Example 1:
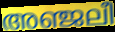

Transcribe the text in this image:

അഞ്ജലീ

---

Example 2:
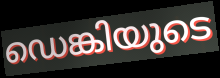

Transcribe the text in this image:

ഡെങ്കിയുടെ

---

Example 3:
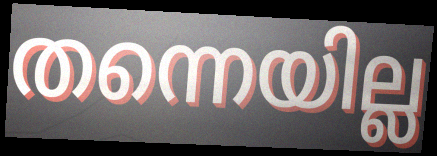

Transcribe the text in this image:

തന്നെയില്ല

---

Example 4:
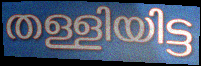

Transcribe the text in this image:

തള്ളിയിട്ട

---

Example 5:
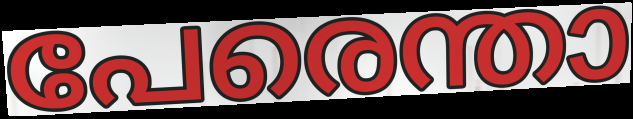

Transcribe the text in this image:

പേരെന്താ